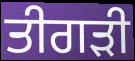
ਤੀਗੜੀ